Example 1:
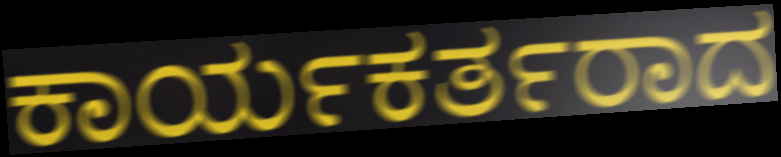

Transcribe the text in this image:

ಕಾರ್ಯಕರ್ತರಾದ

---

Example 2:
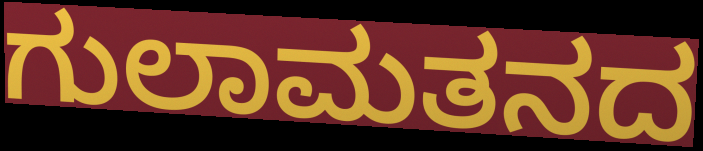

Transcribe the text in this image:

ಗುಲಾಮತನದ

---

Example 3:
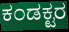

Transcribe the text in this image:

ಕಂಡಕ್ಟರ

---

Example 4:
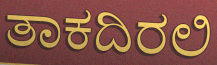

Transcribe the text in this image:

ತಾಕದಿರಲಿ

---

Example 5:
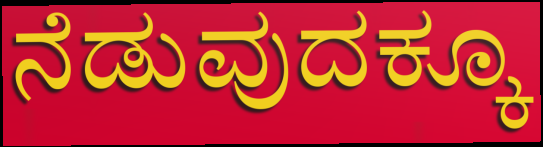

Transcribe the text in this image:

ನೆಡುವುದಕ್ಕೂ